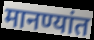
मानण्यांत